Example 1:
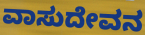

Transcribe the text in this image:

ವಾಸುದೇವನ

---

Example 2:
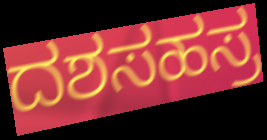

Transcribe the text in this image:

ದಶಸಹಸ್ರ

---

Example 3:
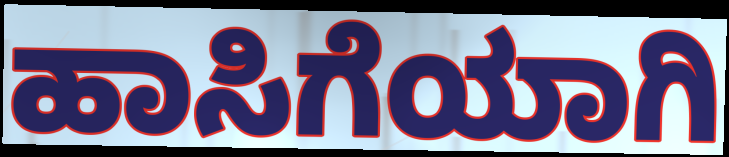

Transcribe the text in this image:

ಹಾಸಿಗೆಯಾಗಿ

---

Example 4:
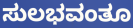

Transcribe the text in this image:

ಸುಲಭವಂತೂ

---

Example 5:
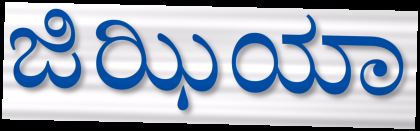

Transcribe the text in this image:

ಜಿಝಿಯಾ